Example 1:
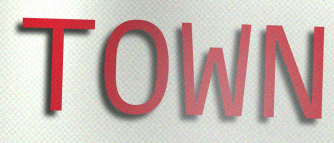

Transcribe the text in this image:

TOWN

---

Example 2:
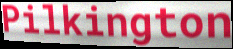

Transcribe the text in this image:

Pilkington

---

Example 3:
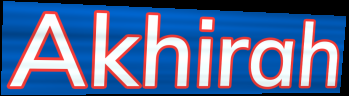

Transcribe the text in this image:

Akhirah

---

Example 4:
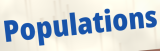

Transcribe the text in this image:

Populations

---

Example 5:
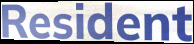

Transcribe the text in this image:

Resident